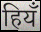
हियँ